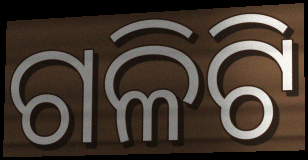
ଗଳିଟି